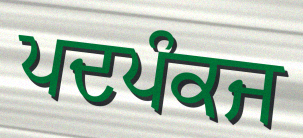
ਪਦਪੰਕਜ